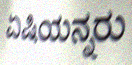
ಏಷಿಯನ್ನರು